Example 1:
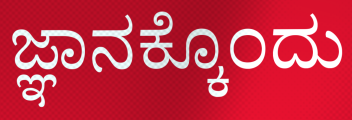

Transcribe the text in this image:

ಜ್ಞಾನಕ್ಕೊಂದು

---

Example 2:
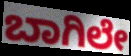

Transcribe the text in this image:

ಬಾಗಿಲೇ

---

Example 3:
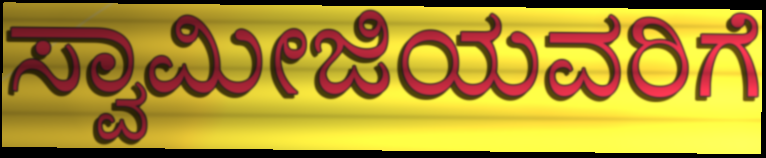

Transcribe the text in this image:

ಸ್ವಾಮೀಜಿಯವರಿಗೆ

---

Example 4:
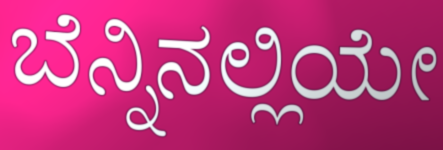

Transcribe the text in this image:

ಬೆನ್ನಿನಲ್ಲಿಯೇ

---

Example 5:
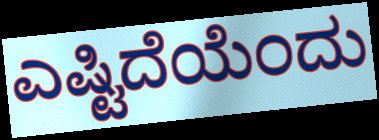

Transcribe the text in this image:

ಎಷ್ಟಿದೆಯೆಂದು